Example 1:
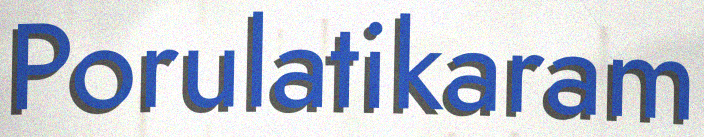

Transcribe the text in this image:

Porulatikaram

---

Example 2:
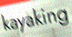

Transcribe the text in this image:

kayaking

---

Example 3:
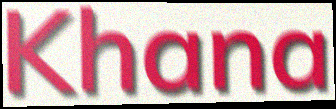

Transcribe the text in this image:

Khana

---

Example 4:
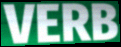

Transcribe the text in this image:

VERB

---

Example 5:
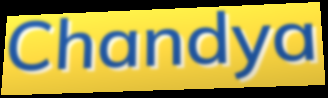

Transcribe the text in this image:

Chandya